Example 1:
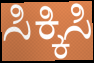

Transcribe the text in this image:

ಸಿಕ್ಕಿಸಿ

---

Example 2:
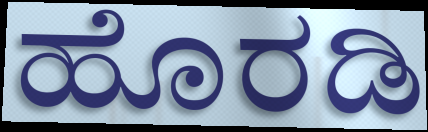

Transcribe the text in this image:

ಹೊರಡಿ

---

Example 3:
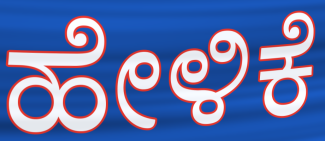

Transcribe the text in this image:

ಹೇಳಿಕೆ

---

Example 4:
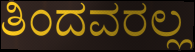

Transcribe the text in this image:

ತಿಂದವರಲ್ಲ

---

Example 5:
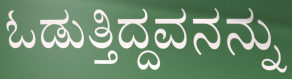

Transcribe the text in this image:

ಓಡುತ್ತಿದ್ದವನನ್ನು